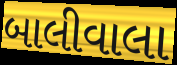
બાલીવાલા